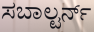
ಸಬಾಲ್ಟರ್ನ್